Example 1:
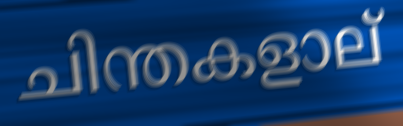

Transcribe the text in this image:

ചിന്തകളാല്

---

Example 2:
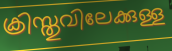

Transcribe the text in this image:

ക്രിസ്തുവിലേക്കുള്ള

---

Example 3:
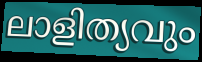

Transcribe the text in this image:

ലാളിത്യവും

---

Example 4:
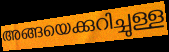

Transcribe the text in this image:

അങ്ങയെക്കുറിച്ചുള്ള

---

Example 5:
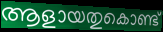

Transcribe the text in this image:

ആളായതുകൊണ്ട്